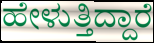
ಹೇಳುತ್ತಿದ್ದಾರೆ